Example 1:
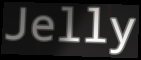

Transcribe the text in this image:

Jelly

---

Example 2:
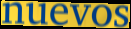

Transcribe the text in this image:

nuevos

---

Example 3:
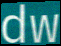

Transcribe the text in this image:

dw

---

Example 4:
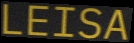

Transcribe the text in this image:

LEISA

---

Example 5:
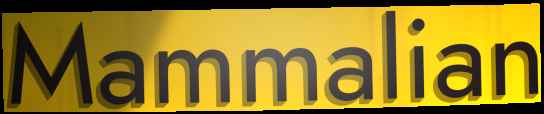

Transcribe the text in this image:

Mammalian